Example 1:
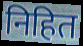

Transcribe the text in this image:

निहित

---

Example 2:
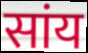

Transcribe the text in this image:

सांय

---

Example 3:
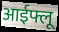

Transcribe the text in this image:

आईफ्लू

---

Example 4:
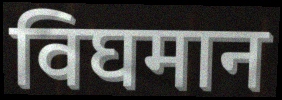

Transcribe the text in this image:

विघमान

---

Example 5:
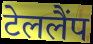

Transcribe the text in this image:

टेललैंप